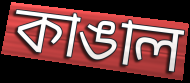
কাঙাল